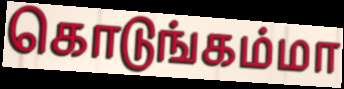
கொடுங்கம்மா